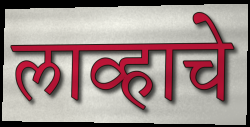
लाव्हाचे